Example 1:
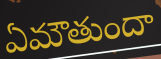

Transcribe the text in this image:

ఏమౌతుందా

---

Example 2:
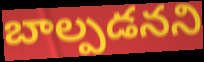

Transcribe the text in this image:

బాల్పడనని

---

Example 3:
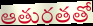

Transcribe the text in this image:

ఆతురతతో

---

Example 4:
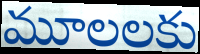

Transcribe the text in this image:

మూలలకు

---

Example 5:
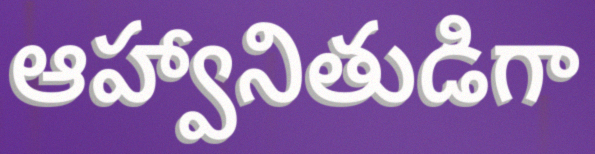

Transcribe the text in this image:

ఆహ్వానితుడిగా